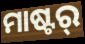
ମାଷ୍ଟର୍